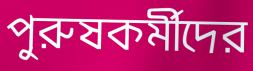
পুরুষকর্মীদের